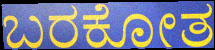
ಬರಕೋತ